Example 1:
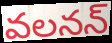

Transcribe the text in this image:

వలనన్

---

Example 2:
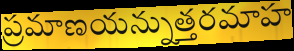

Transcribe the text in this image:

ప్రమాణయన్నుత్తరమాహ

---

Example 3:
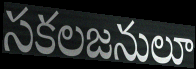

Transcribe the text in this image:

సకలజనులూ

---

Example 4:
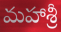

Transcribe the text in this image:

మహాశ్రీ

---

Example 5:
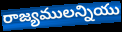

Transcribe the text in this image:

రాజ్యములన్నియు